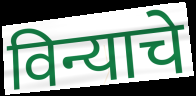
विन्याचे